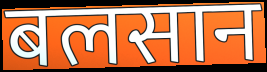
बलसान